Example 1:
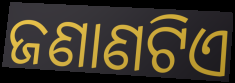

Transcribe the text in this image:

ଜଣାଣଟିଏ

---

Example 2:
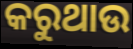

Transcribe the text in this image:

କରୁଥାଉ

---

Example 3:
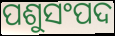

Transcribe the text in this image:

ପଶୁସଂପଦ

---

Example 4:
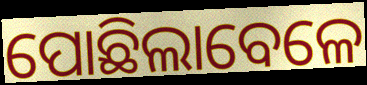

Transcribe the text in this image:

ପୋଛିଲାବେଳେ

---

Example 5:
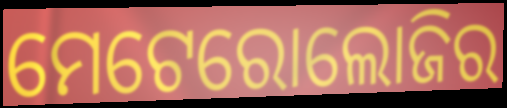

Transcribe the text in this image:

ମେଟେରୋଲୋଜିର